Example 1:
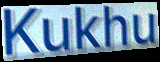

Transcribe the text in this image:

Kukhu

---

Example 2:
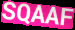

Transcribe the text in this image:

SQAAF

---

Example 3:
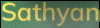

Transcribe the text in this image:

Sathyan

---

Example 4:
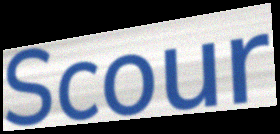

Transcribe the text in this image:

Scour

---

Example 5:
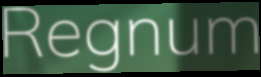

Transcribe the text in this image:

Regnum